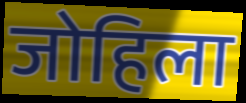
जोहिला